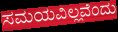
ಸಮಯವಿಲ್ಲವೆಂದು